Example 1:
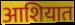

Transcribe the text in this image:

आशियात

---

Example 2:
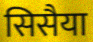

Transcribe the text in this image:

सिसैया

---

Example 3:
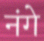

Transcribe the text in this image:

नंगे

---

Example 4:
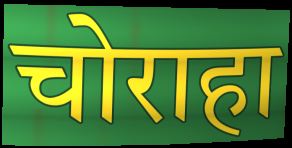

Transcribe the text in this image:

चोराहा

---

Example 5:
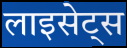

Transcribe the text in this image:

लाइसेट्स